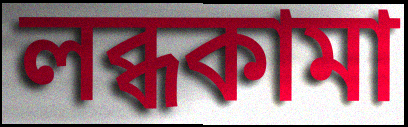
লব্ধকামা